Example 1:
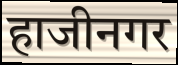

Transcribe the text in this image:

हाजीनगर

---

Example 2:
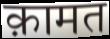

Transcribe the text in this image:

क़ामत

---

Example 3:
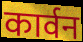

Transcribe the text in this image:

कार्वन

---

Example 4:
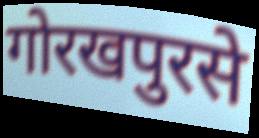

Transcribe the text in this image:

गोरखपुरसे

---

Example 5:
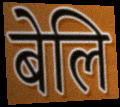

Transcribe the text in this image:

बेलि